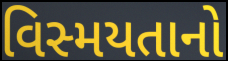
વિસ્મયતાનો